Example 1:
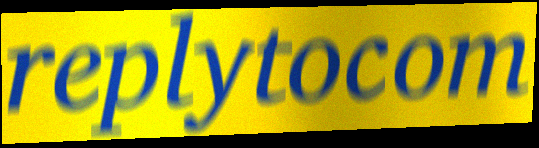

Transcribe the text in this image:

replytocom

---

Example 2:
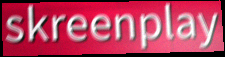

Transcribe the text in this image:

skreenplay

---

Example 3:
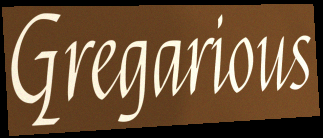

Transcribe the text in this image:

Gregarious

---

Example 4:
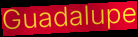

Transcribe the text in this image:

Guadalupe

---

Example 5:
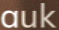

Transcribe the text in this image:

auk